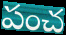
పంచ